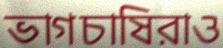
ভাগচাষিরাও